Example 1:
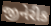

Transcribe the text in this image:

જીનેરીક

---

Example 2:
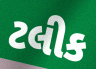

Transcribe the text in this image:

ટલીક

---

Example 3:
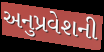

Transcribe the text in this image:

અનુપ્રવેશની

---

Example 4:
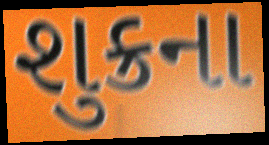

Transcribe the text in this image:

શુક્રના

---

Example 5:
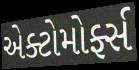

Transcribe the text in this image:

એક્ટોમોર્ફ્સ